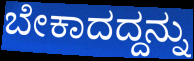
ಬೇಕಾದದ್ದನ್ನು